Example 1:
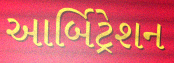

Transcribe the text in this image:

આર્બિટ્રેશન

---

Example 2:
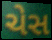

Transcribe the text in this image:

ચેસ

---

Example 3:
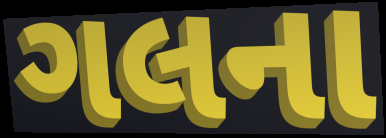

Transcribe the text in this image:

ગલના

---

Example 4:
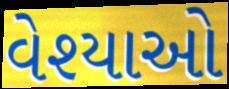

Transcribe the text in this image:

વેશ્યાઓ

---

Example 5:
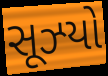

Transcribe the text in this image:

સૂઝ્યો